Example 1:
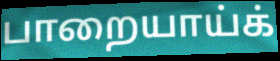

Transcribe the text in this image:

பாறையாய்க்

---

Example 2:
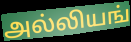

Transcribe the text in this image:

அல்லியங்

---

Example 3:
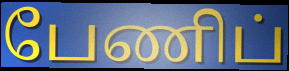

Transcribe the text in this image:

பேணிப்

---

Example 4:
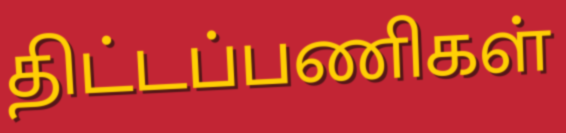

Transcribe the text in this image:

திட்டப்பணிகள்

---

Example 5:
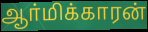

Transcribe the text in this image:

ஆர்மிக்காரன்